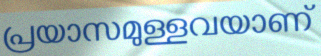
പ്രയാസമുള്ളവയാണ്